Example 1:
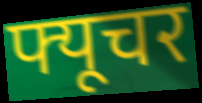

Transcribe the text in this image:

फ्यूचर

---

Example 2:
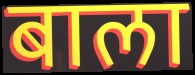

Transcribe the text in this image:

बाला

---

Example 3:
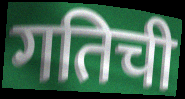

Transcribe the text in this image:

गतिची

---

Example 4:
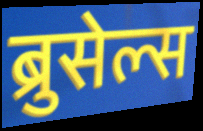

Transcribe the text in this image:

ब्रुसेल्स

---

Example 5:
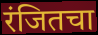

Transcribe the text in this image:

रंजितचा